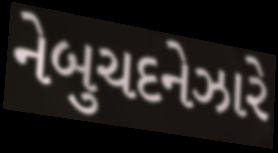
નેબુચદનેઝારે